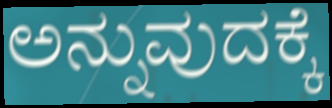
ಅನ್ನುವುದಕ್ಕೆ